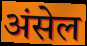
अंसेल